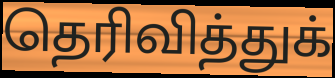
தெரிவித்துக்